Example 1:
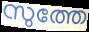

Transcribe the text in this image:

സുത്തേ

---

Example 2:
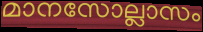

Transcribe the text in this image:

മാനസോല്ലാസം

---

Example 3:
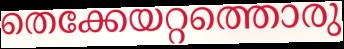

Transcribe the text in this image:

തെക്കേയറ്റത്തൊരു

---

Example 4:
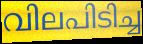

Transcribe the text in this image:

വിലപിടിച്ച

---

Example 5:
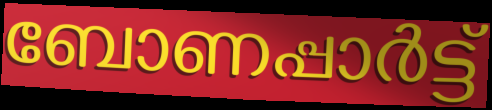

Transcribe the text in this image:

ബോണപ്പാർട്ട്